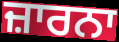
ਜ਼ਾਰਨਾ